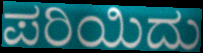
ಪರಿಯಿದು